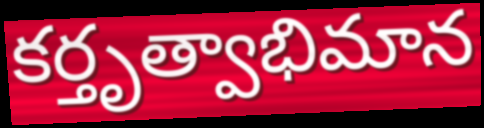
కర్తృత్వాభిమాన